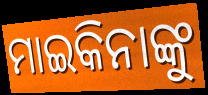
ମାଇକିନାଙ୍କୁ